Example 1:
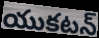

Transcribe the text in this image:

యుకటన్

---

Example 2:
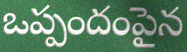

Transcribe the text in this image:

ఒప్పందంపైన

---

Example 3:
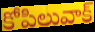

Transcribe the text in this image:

కోపిలువాక్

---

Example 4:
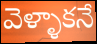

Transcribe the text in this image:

వెళ్ళాకనే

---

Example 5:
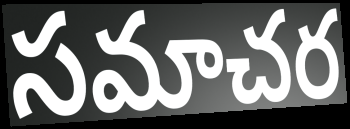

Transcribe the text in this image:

సమాచర